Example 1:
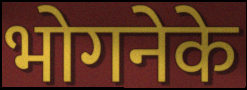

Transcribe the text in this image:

भोगनेके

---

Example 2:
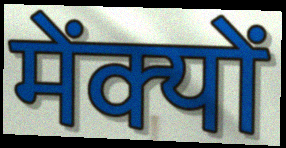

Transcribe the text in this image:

मेंक्यों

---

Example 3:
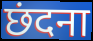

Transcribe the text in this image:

छंदना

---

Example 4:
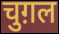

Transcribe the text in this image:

चुग़ल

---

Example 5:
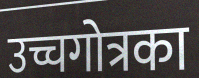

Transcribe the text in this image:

उच्चगोत्रका